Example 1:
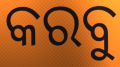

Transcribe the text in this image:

କରବୁ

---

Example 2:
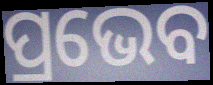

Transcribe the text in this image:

ପ୍ରଭେବ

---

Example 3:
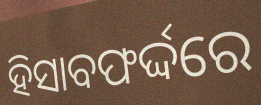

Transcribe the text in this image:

ହିସାବଫର୍ଦ୍ଦରେ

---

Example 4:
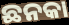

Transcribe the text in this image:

ଛନକା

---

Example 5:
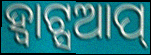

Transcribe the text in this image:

ହ୍ୱାଟ୍ସଆପ୍